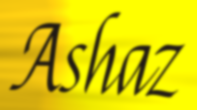
Ashaz